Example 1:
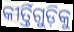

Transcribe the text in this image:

କୀର୍ତ୍ତିଗୁଡ଼ିକୁ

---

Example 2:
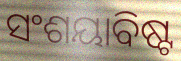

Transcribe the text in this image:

ସଂଶୟାବିଷ୍ଟ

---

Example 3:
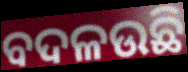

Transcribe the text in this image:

ବଦଳଉଛି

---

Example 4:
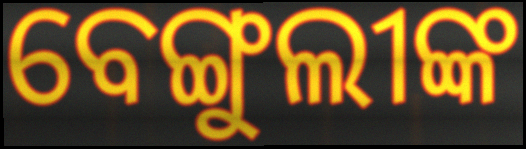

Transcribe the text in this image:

ବେଙ୍ଗୁଲୀଙ୍କ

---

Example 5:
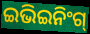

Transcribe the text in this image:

ଇଭିଇନିଂଗ୍